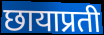
छायाप्रती